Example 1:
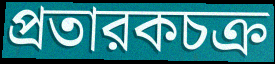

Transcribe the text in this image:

প্রতারকচক্র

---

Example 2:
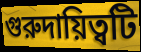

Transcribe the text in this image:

গুরুদায়িত্বটি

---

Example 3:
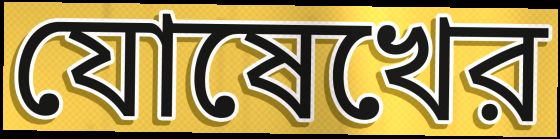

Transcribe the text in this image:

যোষেখের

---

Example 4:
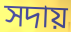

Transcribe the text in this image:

সদায়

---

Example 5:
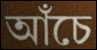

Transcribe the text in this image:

আঁচে